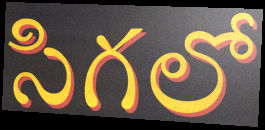
సిగలో